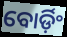
ବୋର୍ଡ଼ିଂ